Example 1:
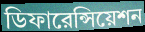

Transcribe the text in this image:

ডিফারেন্সিয়েশন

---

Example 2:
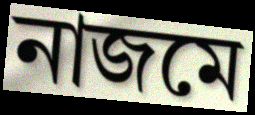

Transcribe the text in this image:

নাজমে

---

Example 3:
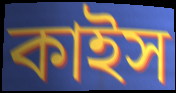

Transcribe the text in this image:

কাইস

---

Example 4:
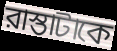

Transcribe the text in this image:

রাস্তাটাকে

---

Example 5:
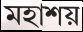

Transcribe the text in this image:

মহাশয়